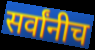
सर्वांनीच